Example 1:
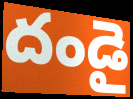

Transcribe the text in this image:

దండై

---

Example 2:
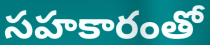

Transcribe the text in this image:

సహకారంతో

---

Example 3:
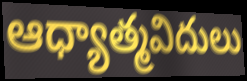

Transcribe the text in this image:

ఆధ్యాత్మవిదులు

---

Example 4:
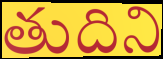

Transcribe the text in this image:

తుదిని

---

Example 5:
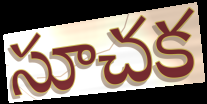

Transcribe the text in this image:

సూచక